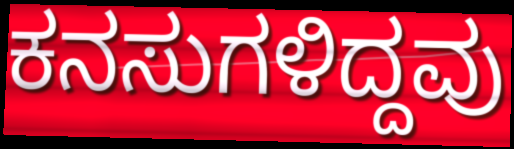
ಕನಸುಗಳಿದ್ದವು